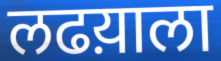
लढय़ाला